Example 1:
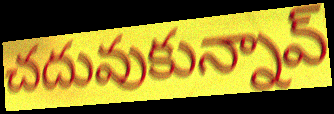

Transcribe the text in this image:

చదువుకున్నావ్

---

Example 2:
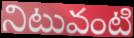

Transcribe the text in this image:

నిటువంటి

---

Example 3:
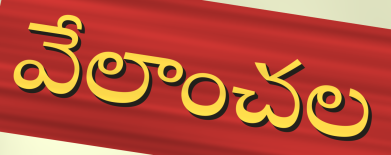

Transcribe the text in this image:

వేలాంచల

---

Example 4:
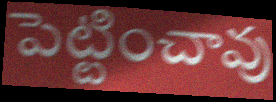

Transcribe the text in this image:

పెట్టించావు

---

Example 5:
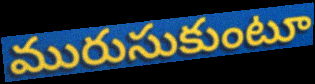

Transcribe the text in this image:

మురుసుకుంటూ